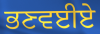
ਭਣਵਈਏ